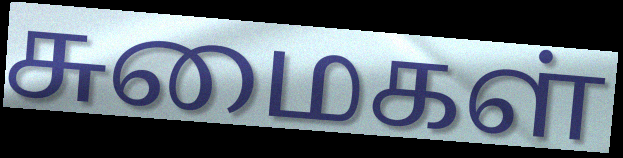
சுமைகள்